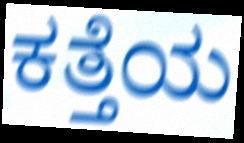
ಕತ್ತೆಯ